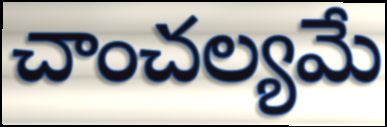
చాంచల్యమే